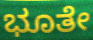
ಭೂತೇ